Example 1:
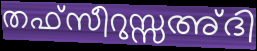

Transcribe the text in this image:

തഫ്സീറുസ്സഅ്ദി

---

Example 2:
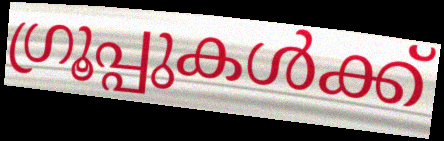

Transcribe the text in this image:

ഗ്രൂപ്പുകൾക്ക്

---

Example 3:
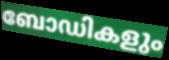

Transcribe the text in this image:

ബോഡികളും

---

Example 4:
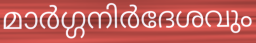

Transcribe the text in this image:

മാർഗ്ഗനിർദേശവും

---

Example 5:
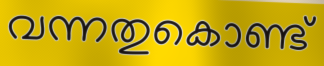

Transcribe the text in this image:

വന്നതുകൊണ്ട്